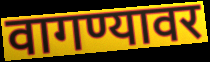
वागण्यावर